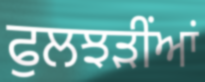
ਫੁਲਝੜੀਂਆਂ